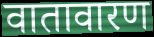
वातावारण